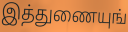
இத்துணையுங்